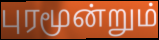
புரமூன்றும்